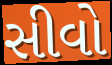
સીવો